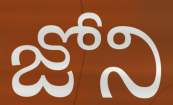
జోని